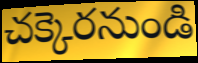
చక్కెరనుండి